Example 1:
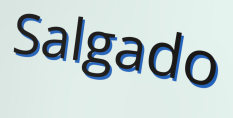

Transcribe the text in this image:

Salgado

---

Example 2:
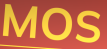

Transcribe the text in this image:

MOS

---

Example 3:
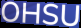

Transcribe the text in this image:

OHSU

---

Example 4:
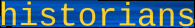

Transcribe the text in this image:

historians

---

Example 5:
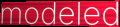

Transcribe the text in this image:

modeled